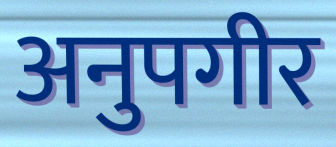
अनुपगीर